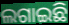
ଲଗାଇଛି